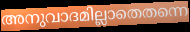
അനുവാദമില്ലാതെതന്നെ